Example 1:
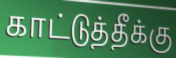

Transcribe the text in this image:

காட்டுத்தீக்கு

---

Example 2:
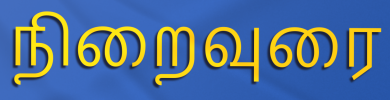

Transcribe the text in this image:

நிறைவுரை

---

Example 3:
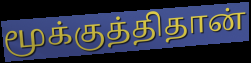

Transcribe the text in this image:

மூக்குத்திதான்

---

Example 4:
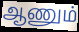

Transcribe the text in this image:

ஆணும்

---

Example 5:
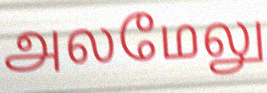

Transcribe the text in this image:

அலமேலு